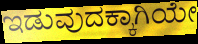
ಇಡುವುದಕ್ಕಾಗಿಯೇ